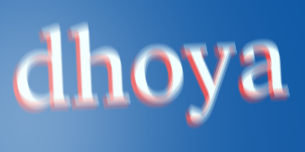
dhoya